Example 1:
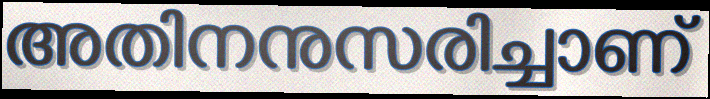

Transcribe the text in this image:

അതിനനുസരിച്ചാണ്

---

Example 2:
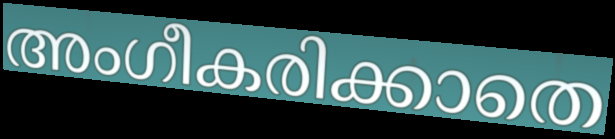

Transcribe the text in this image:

അംഗീകരിക്കാതെ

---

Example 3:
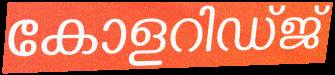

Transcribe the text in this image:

കോളറിഡ്ജ്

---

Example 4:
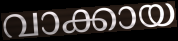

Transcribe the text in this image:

വാക്കായ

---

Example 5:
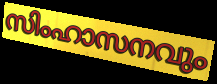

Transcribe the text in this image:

സിംഹാസനവും